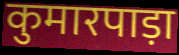
कुमारपाड़ा